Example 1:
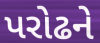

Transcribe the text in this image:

પરોઢને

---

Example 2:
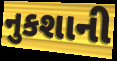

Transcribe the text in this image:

નુકશાની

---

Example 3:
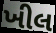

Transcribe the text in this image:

ખીલ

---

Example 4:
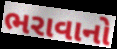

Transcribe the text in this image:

ભરાવાનો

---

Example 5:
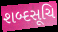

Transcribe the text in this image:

શબ્દસૂચિ